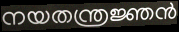
നയതന്ത്രജ്ഞൻ